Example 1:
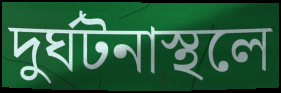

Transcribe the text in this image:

দুর্ঘটনাস্থলে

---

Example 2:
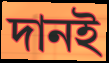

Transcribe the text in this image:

দানই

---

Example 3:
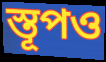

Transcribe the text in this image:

স্তূপও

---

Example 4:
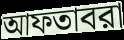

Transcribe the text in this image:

আফতাবরা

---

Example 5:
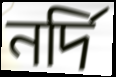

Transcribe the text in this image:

নর্দি